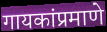
गायकांप्रमाणे